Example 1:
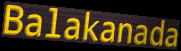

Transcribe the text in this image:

Balakanada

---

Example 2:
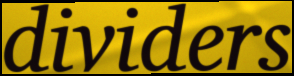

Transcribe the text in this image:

dividers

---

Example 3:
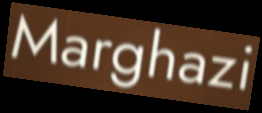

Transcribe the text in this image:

Marghazi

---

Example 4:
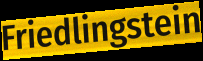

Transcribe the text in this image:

Friedlingstein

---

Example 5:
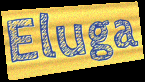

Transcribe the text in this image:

Eluga